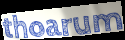
thoarum